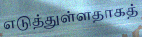
எடுத்துள்ளதாகத்